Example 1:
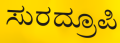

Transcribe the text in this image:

ಸುರದ್ರೂಪಿ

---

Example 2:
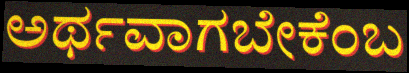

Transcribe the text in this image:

ಅರ್ಥವಾಗಬೇಕೆಂಬ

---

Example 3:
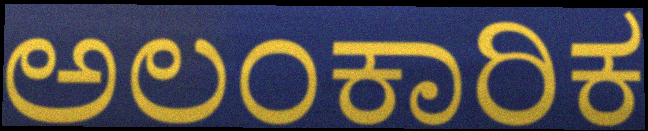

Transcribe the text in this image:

ಅಲಂಕಾರಿಕ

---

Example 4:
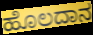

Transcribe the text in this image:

ಹೊಲದಾನ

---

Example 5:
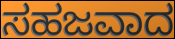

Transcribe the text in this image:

ಸಹಜವಾದ